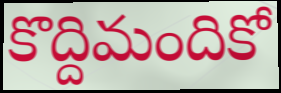
కొద్దిమందికో